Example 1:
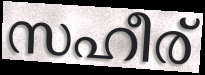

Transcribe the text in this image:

സഹീര്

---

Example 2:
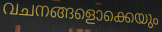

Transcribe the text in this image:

വചനങ്ങളൊക്കെയും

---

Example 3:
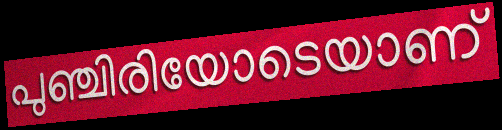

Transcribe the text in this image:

പുഞ്ചിരിയോടെയാണ്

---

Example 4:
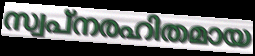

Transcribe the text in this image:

സ്വപ്നരഹിതമായ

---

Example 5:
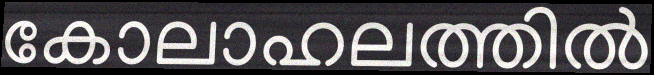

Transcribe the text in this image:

കോലാഹലത്തിൽ